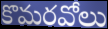
కొమరవోలు